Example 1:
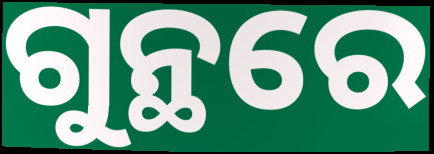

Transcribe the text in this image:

ଗୁନ୍ଥରେ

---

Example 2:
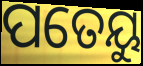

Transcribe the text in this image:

ପତେୟୁ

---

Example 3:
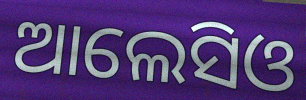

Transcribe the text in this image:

ଆଲେସିଓ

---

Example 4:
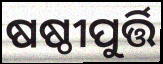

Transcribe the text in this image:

ଷଷ୍ଠୀପୁର୍ତ୍ତି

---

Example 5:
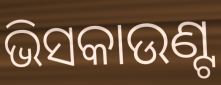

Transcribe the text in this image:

ଭିସକାଉଣ୍ଟ